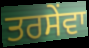
ਤਰਸੇਂਵਾ